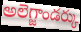
అలెగ్జాండర్కు